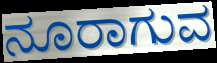
ನೂರಾಗುವ